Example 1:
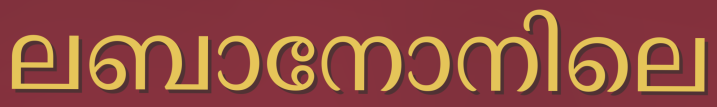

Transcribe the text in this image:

ലബാനോനിലെ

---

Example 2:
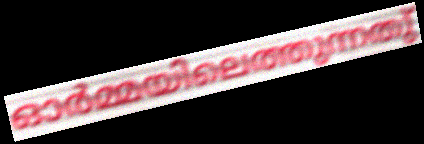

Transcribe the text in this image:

ഓർമ്മയിലെത്തുന്നതു്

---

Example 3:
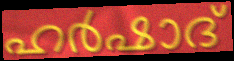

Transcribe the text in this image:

ഹർഷാദ്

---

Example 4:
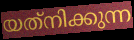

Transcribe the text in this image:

യത്‌നിക്കുന്ന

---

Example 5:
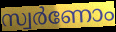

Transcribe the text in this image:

സ്വർണോം